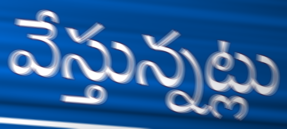
వేస్తున్నట్లు